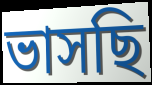
ভাসছি